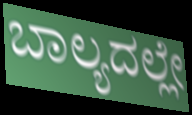
ಬಾಲ್ಯದಲ್ಲೇ